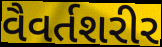
વૈવર્તશરીર